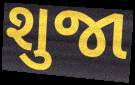
શુજા